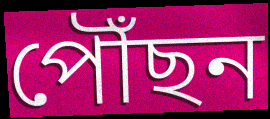
পৌঁছন